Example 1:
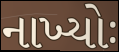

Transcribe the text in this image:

નાખ્યોઃ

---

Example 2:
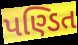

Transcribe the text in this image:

પણ્ડિત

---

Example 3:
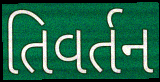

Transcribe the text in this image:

તિવર્તન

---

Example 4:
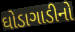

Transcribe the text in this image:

ઘોડાગાડીનો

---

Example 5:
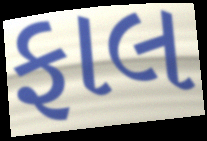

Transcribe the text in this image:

ફાલ